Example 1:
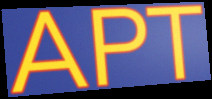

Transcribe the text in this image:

APT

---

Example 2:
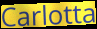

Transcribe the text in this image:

Carlotta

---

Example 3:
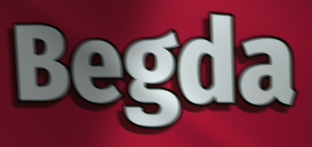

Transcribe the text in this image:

Begda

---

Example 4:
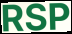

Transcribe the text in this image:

RSP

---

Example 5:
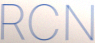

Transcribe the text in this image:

RCN